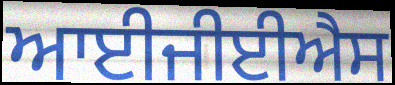
ਆਈਜੀਈਐਸ